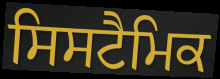
ਸਿਸਟੈਮਿਕ